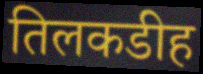
तिलकडीह